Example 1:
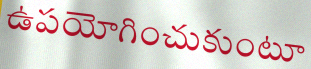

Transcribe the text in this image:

ఉపయోగించుకుంటూ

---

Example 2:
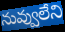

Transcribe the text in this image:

నువ్వులేని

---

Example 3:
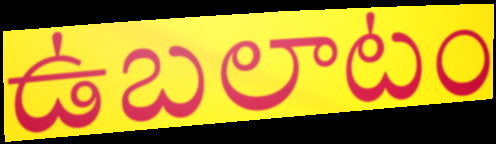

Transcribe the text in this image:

ఉబలాటం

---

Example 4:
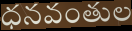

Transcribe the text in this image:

ధనవంతుల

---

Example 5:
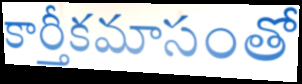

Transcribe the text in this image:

కార్తీకమాసంతో